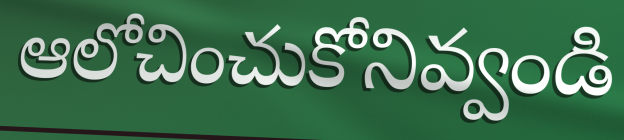
ఆలోచించుకోనివ్వండి